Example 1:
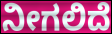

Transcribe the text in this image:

ನೀಗಲಿದೆ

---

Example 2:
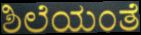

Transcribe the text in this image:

ಶಿಲೆಯಂತೆ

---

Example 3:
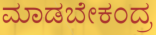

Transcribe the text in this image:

ಮಾಡಬೇಕಂದ್ರ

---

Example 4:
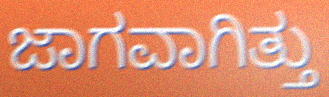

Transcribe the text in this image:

ಜಾಗವಾಗಿತ್ತು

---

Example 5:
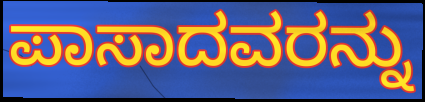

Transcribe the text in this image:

ಪಾಸಾದವರನ್ನು